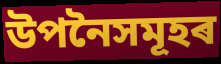
উপনৈসমূহৰ